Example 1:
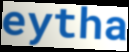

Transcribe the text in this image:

eytha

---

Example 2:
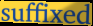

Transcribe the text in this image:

suffixed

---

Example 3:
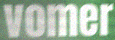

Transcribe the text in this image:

vomer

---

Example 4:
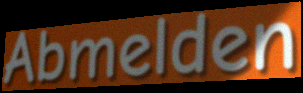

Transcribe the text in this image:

Abmelden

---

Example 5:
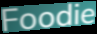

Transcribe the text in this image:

Foodie